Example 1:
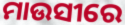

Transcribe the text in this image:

ମାଉସୀରେ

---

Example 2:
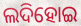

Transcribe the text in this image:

ଲଦିହୋଇ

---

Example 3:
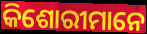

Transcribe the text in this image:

କିଶୋରୀମାନେ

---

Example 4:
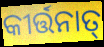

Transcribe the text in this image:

କୀର୍ତ୍ତନାତ୍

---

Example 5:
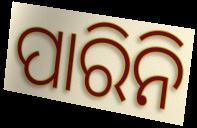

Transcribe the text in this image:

ପାରିନି